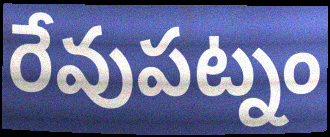
రేవుపట్నం